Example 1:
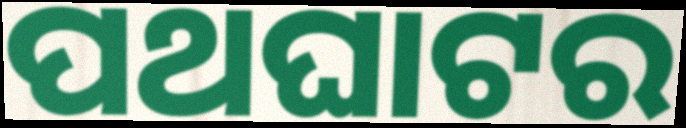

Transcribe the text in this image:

ପଥଘାଟର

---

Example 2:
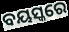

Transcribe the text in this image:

ବୟସ୍କରେ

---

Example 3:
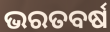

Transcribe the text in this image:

ଭରତବର୍ଷ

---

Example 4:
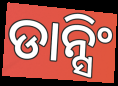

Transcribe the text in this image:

ଡାନ୍ସିଂ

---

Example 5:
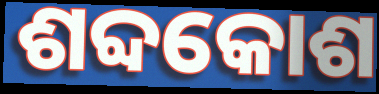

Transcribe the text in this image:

ଶବ୍ଦକୋଶ